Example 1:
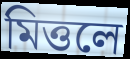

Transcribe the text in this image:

মিত্তলে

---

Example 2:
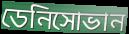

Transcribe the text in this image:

ডেনিসোভান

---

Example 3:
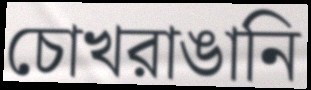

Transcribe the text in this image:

চোখরাঙানি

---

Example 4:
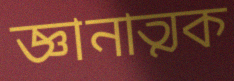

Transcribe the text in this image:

জ্ঞানাত্মক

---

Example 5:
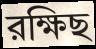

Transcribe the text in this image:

রক্ষিছ